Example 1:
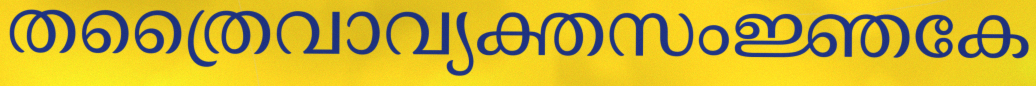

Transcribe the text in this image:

തത്രൈവാവ്യക്തസംജ്ഞകേ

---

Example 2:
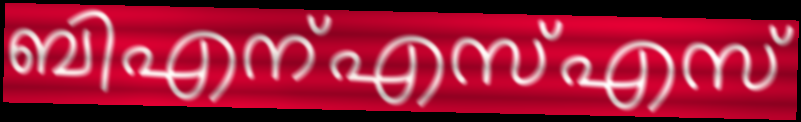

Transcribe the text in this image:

ബിഎന്എസ്എസ്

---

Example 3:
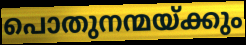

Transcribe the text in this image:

പൊതുനന്മയ്ക്കും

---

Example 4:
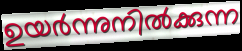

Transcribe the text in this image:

ഉയർന്നുനിൽക്കുന്ന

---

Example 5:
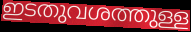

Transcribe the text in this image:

ഇടതുവശത്തുള്ള